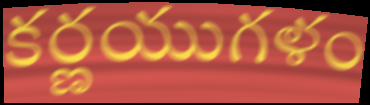
కర్ణయుగళం